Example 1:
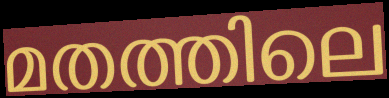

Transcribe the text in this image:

മതത്തിലെ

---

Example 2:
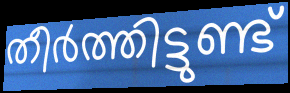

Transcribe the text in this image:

തീർത്തിട്ടുണ്ട്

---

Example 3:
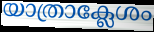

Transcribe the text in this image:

യാത്രാക്ലേശം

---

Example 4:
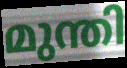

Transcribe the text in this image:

മുന്തി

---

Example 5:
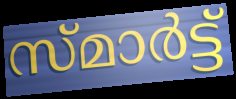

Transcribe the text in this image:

സ്മാർട്ട്